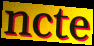
ncte